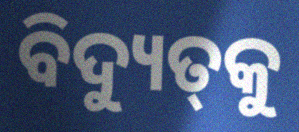
ବିଦ୍ୟୁତ୍‌କୁ